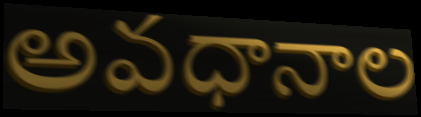
అవధానాల